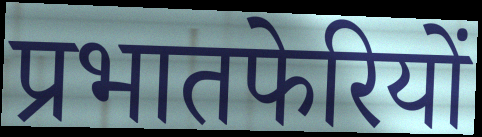
प्रभातफेरियों